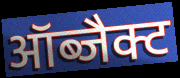
ऑब्जैक्ट